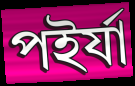
পইর্যা